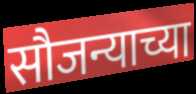
सौजन्याच्या